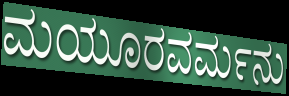
ಮಯೂರವರ್ಮನು